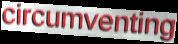
circumventing